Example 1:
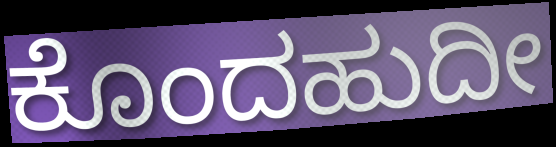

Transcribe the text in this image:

ಕೊಂದಹುದೀ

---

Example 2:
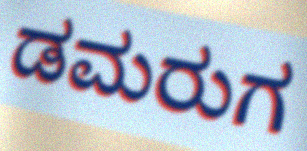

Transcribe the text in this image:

ಡಮರುಗ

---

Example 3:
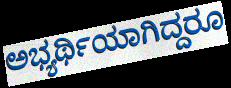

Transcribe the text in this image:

ಅಭ್ಯರ್ಥಿಯಾಗಿದ್ದರೂ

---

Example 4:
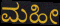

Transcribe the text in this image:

ಮಹೀ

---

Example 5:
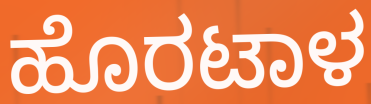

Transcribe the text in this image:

ಹೊರಟಾಳ